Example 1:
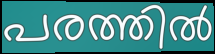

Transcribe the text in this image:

പരത്തിൽ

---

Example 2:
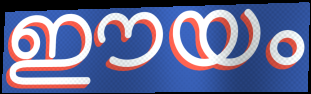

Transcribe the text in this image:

ഈയം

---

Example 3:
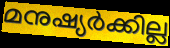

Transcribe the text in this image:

മനുഷ്യർക്കില്ല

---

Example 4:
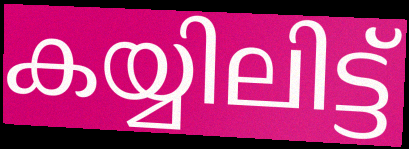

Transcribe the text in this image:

കയ്യിലിട്ട്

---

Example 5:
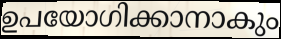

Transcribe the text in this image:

ഉപയോഗിക്കാനാകും